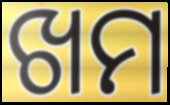
ଖମ